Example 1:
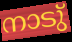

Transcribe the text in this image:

നാടു്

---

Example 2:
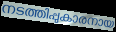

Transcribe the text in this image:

നടത്തിപ്പുകാരനായ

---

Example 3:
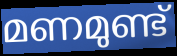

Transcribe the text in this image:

മണമുണ്ട്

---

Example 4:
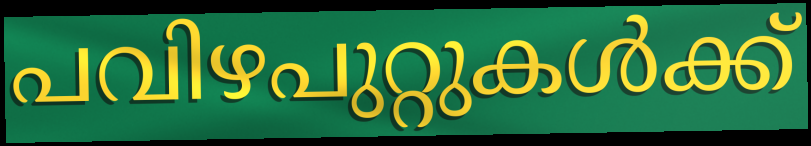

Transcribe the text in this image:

പവിഴപുറ്റുകൾക്ക്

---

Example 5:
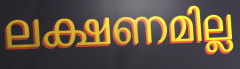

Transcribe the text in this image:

ലക്ഷണമില്ല